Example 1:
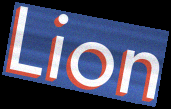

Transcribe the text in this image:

Lion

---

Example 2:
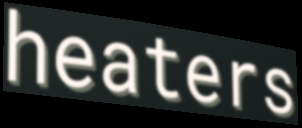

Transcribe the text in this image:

heaters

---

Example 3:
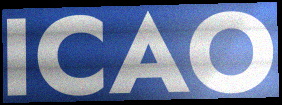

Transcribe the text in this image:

ICAO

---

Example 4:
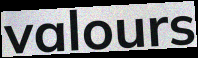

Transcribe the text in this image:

valours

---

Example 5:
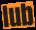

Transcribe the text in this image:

lub